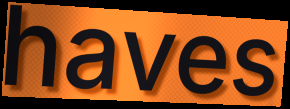
haves